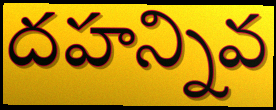
దహన్నివ